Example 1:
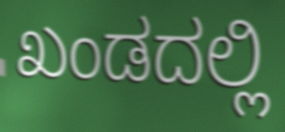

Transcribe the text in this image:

ಖಂಡದಲ್ಲಿ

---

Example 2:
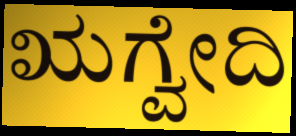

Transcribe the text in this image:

ಋಗ್ವೇದಿ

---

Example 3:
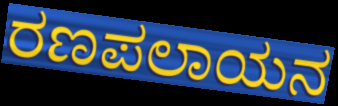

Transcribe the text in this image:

ರಣಪಲಾಯನ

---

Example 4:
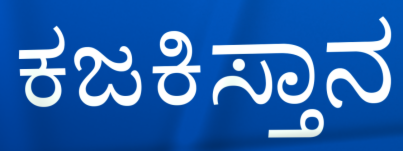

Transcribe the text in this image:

ಕಜಕಿಸ್ತಾನ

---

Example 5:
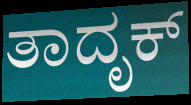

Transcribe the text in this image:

ತಾದೃಕ್